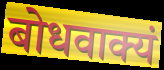
बोधवाक्यं